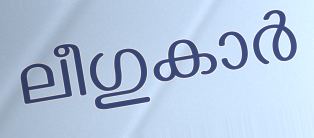
ലീഗുകാർ